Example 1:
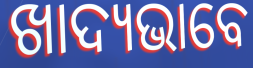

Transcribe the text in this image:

ଖାଦ୍ୟଭାବେ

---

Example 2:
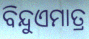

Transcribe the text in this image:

ବିନ୍ଦୁଏମାତ୍ର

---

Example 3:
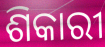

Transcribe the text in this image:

ଶିକାରୀ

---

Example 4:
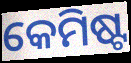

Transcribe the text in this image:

କେମିଷ୍ଟ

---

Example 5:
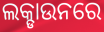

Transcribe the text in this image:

ଲକ୍ଡାଉନରେ